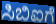
ಸಿಬಿಐಗೆ